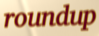
roundup